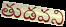
తుడవని